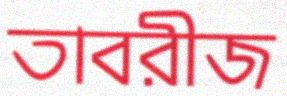
তাবরীজ